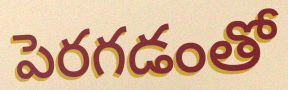
పెరగడంతో